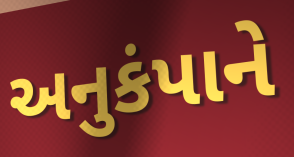
અનુકંપાને